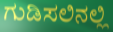
ಗುಡಿಸಲಿನಲ್ಲಿ